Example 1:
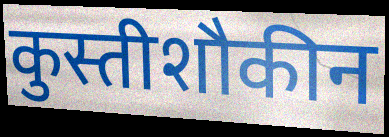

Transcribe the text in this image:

कुस्तीशौकीन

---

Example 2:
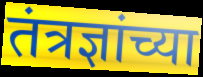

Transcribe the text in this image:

तंत्रज्ञांच्या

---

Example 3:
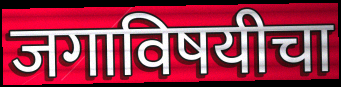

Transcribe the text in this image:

जगाविषयीचा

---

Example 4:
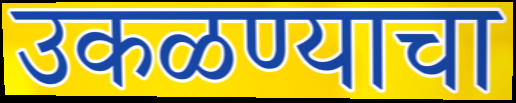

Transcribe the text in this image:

उकळण्याचा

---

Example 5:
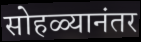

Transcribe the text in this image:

सोहळ्यानंतर